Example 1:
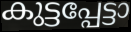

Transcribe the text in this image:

കുട്ടപ്പേട്ടാ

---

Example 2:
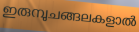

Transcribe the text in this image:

ഇരുമ്പുചങ്ങലകളാൽ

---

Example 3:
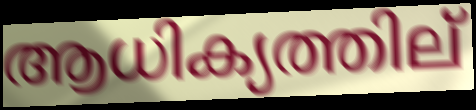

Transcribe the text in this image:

ആധിക്യത്തില്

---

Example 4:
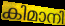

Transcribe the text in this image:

കിമാനി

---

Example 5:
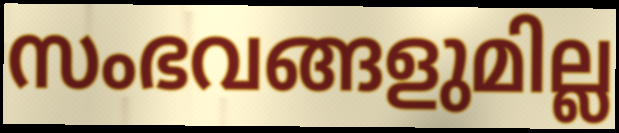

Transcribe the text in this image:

സംഭവങ്ങളുമില്ല